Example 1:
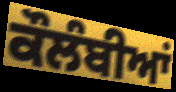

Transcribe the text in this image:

ਕੌਲੰਬੀਆਂ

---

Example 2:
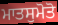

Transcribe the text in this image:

ਮਾਤਸੁਮੋਤੋ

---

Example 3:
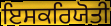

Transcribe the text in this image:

ਇਸਕਰਿਯੋਤੀ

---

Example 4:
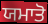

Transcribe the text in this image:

ਯਮਾਤੋ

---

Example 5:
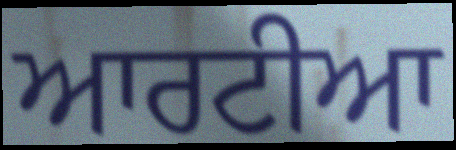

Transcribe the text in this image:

ਆਰਟੀਆ